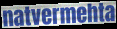
natvermehta